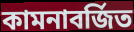
কামনাবর্জিত